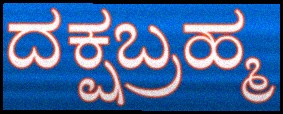
ದಕ್ಷಬ್ರಹ್ಮ